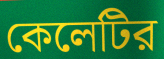
কেলেটির